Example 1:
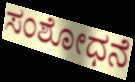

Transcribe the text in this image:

ಸಂಶೋಧನೆ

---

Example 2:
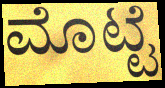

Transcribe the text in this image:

ಮೊಟ್ಟೆ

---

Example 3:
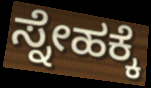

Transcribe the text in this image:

ಸ್ನೇಹಕ್ಕೆ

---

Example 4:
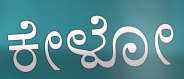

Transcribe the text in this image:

ಕೇಳೋ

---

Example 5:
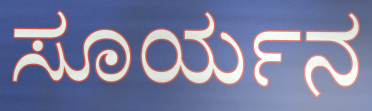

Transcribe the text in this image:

ಸೂರ್ಯನ